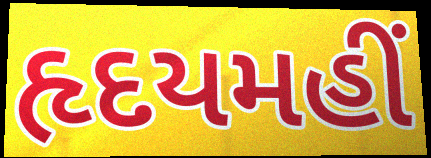
હૃદયમહીં